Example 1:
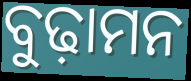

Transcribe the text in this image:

ବୁଢ଼ାମନ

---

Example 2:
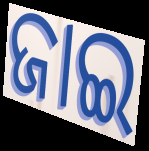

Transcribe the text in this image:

ଜାଇ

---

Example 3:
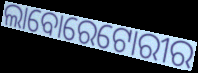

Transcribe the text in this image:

ଲାବୋରେଟୋରୀର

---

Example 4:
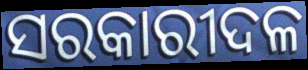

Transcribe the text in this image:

ସରକାରୀଦଳ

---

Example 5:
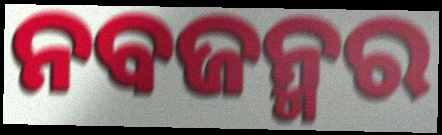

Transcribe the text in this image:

ନବଜନ୍ମର